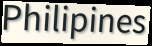
Philipines